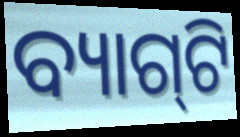
ବ୍ୟାଗ୍‌ଟି